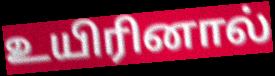
உயிரினால்